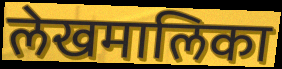
लेखमालिका